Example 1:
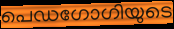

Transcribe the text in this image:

പെഡഗോഗിയുടെ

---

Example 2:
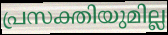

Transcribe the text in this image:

പ്രസക്തിയുമില്ല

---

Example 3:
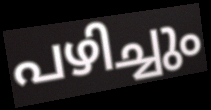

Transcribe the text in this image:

പഴിച്ചും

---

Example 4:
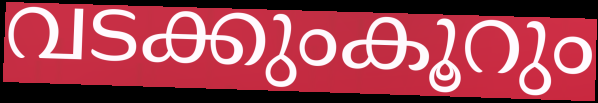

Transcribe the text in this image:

വടക്കുംകൂറും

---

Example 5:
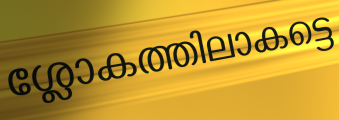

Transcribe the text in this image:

ശ്ലോകത്തിലാകട്ടെ